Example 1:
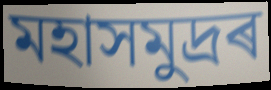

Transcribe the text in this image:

মহাসমুদ্ৰৰ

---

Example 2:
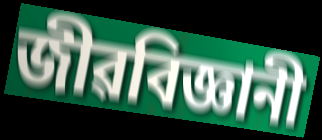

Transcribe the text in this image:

জীৱবিজ্ঞানী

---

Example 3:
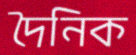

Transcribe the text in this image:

দৈনিক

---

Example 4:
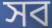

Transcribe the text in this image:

সব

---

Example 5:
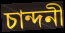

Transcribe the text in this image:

চান্দনী